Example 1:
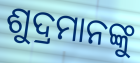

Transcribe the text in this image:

ଶୁଦ୍ରମାନଙ୍କୁ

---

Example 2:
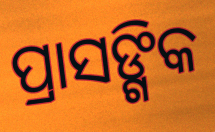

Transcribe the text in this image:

ପ୍ରାସଙ୍ଗିକ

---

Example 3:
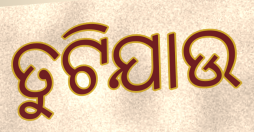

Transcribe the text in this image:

ତୁଟିଯାଉ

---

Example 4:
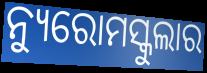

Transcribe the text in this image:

ନ୍ୟୁରୋମସ୍କୁଲାର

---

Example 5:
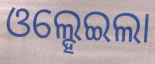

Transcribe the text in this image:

ଓଲ୍ହେଇଲା